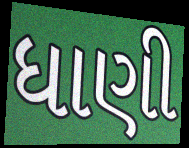
ધાણી